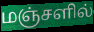
மஞ்சளில்